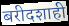
बरीदशाही